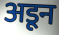
अडून